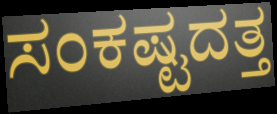
ಸಂಕಷ್ಟದತ್ತ